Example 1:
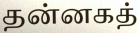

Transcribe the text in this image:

தன்னகத்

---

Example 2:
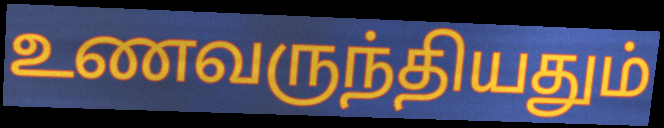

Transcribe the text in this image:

உணவருந்தியதும்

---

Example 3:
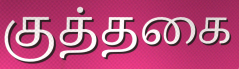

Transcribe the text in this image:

குத்தகை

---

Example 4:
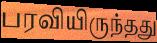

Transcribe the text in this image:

பரவியிருந்தது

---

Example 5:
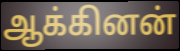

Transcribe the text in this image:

ஆக்கினன்